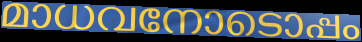
മാധവനോടൊപ്പം